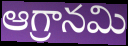
ఆగ్రానమి